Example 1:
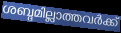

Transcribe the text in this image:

ശബ്ദമില്ലാത്തവർക്ക്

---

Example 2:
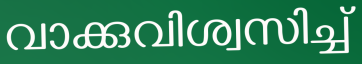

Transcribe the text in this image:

വാക്കുവിശ്വസിച്ച്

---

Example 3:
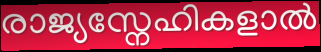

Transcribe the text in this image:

രാജ്യസ്നേഹികളാൽ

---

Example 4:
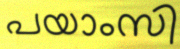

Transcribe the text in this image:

പയാംസി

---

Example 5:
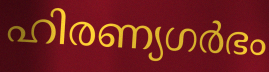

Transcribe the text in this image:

ഹിരണ്യഗർഭം